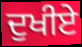
ਦੁਖੀਏ